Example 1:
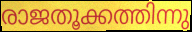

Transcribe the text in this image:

രാജതൂക്കത്തിന്നു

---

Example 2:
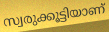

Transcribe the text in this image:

സ്വരുക്കൂട്ടിയാണ്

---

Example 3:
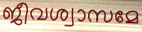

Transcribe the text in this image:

ജീവശ്വാസമേ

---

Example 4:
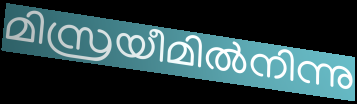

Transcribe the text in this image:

മിസ്രയീമിൽനിന്നു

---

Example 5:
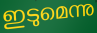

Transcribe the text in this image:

ഇടുമെന്നു